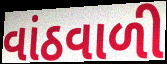
વાંઠવાળી